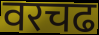
वरचढ